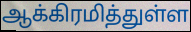
ஆக்கிரமித்துள்ள